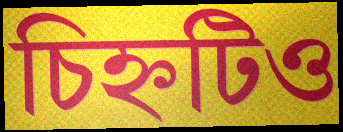
চিহ্নটিও